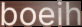
boeih